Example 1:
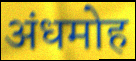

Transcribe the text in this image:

अंधमोह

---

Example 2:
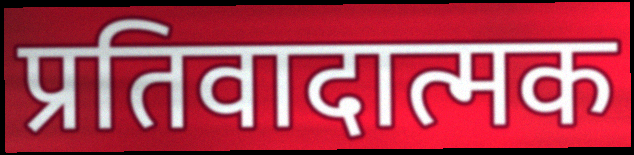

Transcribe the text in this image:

प्रतिवादात्मक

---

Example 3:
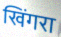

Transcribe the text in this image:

खिंगरा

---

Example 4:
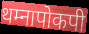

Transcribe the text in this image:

थम्नापोकपी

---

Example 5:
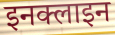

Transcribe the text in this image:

इनक्लाइन